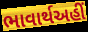
ભાવાર્થઅહીં